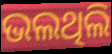
ଭଲଥିଲି